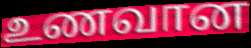
உணவான